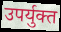
उपर्युक्त